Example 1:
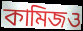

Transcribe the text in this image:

কামিজও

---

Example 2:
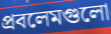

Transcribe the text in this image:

প্রবলেমগুলো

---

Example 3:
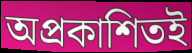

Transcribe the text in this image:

অপ্রকাশিতই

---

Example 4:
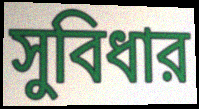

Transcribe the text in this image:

সুবিধার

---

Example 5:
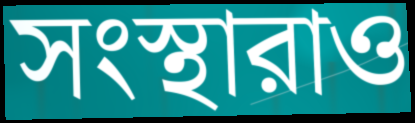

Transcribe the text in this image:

সংস্থারাও